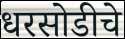
धरसोडीचे